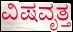
ವಿಷವೃತ್ತ